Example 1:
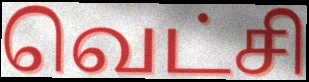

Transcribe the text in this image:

வெட்சி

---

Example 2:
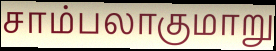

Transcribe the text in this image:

சாம்பலாகுமாறு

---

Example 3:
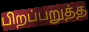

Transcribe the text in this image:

பிறப்பறுத்த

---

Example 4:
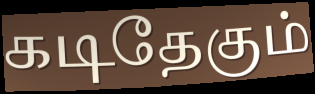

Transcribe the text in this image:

கடிதேகும்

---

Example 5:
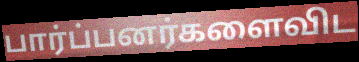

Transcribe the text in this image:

பார்ப்பனர்களைவிட